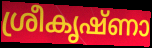
ശ്രീകൃഷ്ണാ